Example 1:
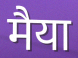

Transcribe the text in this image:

मैया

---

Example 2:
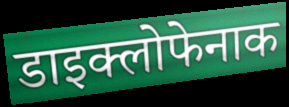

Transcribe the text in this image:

डाइक्लोफेनाक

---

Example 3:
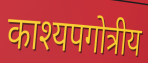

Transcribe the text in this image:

काश्यपगोत्रीय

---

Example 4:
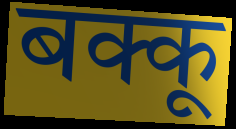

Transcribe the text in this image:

बक्कू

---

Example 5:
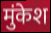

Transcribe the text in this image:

मुंकेश